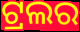
ଟ୍ରଲର